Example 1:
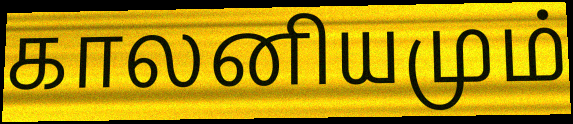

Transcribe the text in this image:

காலனியமும்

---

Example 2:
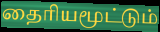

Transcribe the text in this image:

தைரியமூட்டும்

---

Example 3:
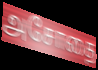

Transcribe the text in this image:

அசோதை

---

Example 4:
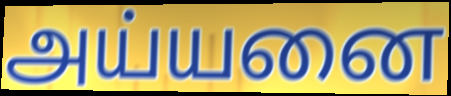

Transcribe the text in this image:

அய்யனை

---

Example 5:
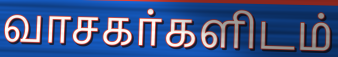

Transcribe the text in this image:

வாசகர்களிடம்